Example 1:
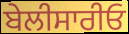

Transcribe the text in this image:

ਬੇਲੀਸਾਰੀਓ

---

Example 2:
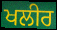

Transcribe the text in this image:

ਖਲੀਰ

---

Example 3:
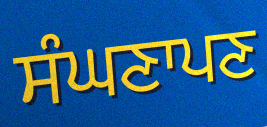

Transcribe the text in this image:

ਸੰਘਣਾਪਣ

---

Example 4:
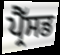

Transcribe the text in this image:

ਪ੍ਰੈੱਸਡ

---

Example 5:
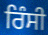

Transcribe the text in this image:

ਰਿੰਸੀ